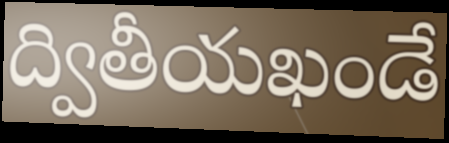
ద్వితీయఖండే